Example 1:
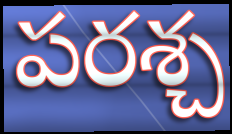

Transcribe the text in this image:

పరశ్చ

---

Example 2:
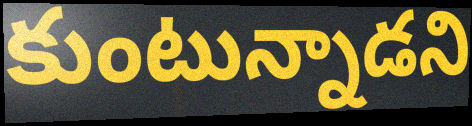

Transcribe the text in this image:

కుంటున్నాడని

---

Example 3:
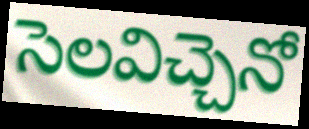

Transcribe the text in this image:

సెలవిచ్చెనో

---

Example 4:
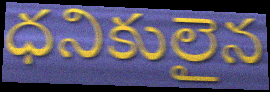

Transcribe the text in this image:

ధనికులైన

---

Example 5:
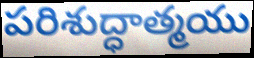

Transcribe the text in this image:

పరిశుద్ధాత్మయు